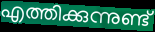
എത്തിക്കുന്നുണ്ട്